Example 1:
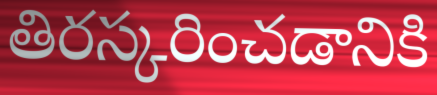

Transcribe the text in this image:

తిరస్కరించడానికి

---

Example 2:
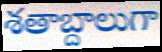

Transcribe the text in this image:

శతాబ్దాలుగా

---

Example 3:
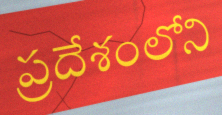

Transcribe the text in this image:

ప్రదేశంలోని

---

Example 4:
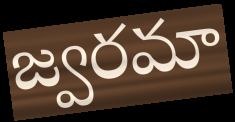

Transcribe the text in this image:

జ్వరమా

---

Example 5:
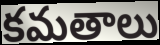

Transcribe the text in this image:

కమతాలు